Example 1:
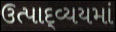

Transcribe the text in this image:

ઉત્પાદ્વ્યયમાં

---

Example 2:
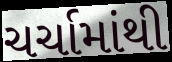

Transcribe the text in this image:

ચર્ચામાંથી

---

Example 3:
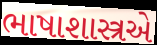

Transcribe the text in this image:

ભાષાશાસ્ત્રએ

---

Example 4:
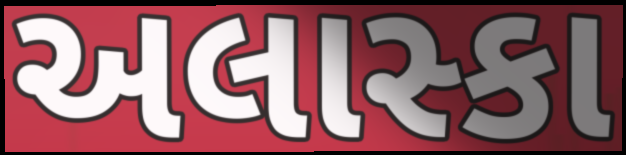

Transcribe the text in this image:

અલાસ્કા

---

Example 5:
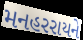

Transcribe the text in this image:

મનહરરાયને